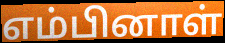
எம்பினாள்